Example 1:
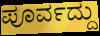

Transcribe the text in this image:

ಪೂರ್ವದ್ದು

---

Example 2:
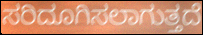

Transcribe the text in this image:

ಸರಿದೂಗಿಸಲಾಗುತ್ತದೆ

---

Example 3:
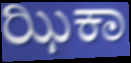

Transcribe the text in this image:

ಝಿಕಾ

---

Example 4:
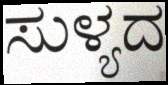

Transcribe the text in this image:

ಸುಳ್ಯದ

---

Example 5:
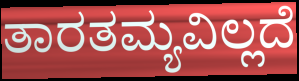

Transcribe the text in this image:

ತಾರತಮ್ಯವಿಲ್ಲದೆ